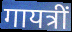
गायत्रीं